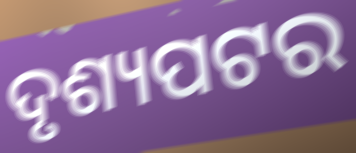
ଦୃଶ୍ୟପଟର